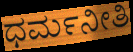
ಧರ್ಮನೀತಿ